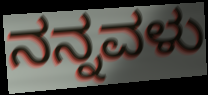
ನನ್ನವಳು